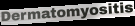
Dermatomyositis